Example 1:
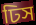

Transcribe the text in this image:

ঢিস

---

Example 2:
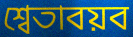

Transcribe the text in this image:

শ্বেতাবয়ব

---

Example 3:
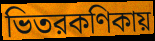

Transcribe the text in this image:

ভিতরকণিকায়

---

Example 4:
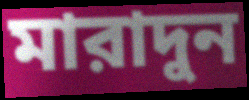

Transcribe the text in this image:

মারাদুন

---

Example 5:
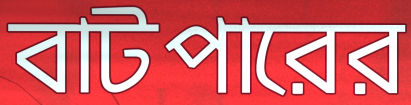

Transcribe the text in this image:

বাটপারের